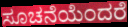
ಸೂಚನೆಯೆಂದರೆ